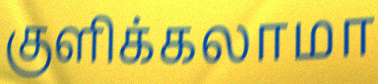
குளிக்கலாமா